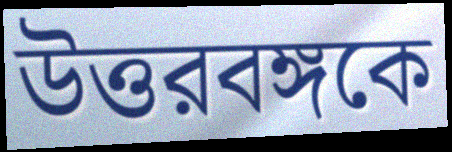
উত্তরবঙ্গকে